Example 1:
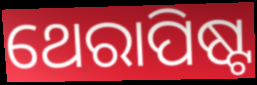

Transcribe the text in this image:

ଥେରାପିଷ୍ଟ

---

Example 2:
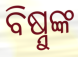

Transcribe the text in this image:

ବିଷ୍ନୁଙ୍କ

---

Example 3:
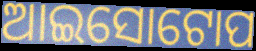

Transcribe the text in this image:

ଆଇସୋଟୋପ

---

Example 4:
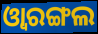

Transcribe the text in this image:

ଓ୍ବାରଙ୍ଗଲ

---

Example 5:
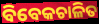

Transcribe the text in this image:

ବିବେକଚାଳିତ